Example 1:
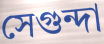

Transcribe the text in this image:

সেগুন্দা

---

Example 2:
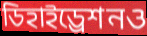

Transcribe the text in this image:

ডিহাইড্রেশনও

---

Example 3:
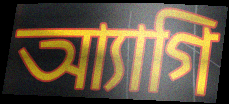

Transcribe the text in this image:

আ্যাগি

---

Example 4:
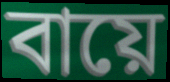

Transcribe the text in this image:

বায়ে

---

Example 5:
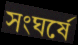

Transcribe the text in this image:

সংঘর্ষে